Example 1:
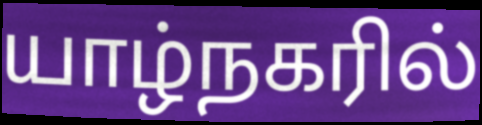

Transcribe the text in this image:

யாழ்நகரில்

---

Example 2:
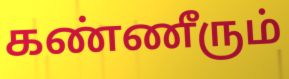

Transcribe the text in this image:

கண்ணீரும்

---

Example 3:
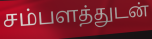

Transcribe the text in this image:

சம்பளத்துடன்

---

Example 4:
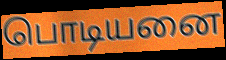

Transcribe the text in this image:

பொடியனை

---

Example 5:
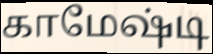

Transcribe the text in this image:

காமேஷ்டி